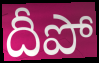
దీపో